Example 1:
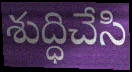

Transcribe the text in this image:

శుద్ధిచేసి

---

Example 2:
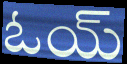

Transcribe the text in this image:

ఓయ్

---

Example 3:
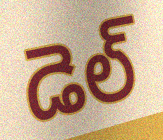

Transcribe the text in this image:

డెల్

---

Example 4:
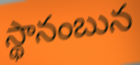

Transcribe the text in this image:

స్థానంబున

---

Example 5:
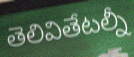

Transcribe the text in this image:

తెలివితేటల్నీ